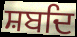
ਸ਼ਬਦਿ